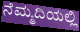
ನೆಮ್ಮದಿಯಲ್ಲಿ